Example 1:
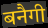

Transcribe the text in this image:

बनैगी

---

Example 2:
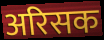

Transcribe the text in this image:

अरिसक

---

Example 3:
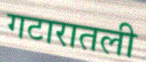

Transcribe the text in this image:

गटारातली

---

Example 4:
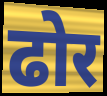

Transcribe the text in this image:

ढोर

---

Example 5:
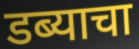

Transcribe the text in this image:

डब्याचा